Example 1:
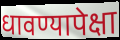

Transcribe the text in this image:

धावण्यापेक्षा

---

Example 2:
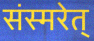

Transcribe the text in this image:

संस्मरेत्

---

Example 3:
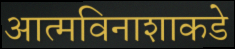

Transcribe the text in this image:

आत्मविनाशाकडे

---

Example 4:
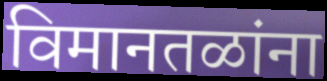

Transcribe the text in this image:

विमानतळांना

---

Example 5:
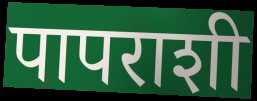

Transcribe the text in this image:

पापराशी